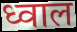
ध्वाल